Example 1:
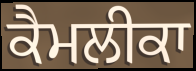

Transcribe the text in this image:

ਕੈਮਲੀਕਾ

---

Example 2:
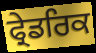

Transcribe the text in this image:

ਫ੍ਰੇਡਰਿਕ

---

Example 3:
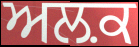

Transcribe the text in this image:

ਅਲ਼ਕ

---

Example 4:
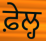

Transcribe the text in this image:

ਫ਼ੇਲ੍ਹ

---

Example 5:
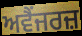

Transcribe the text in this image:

ਅਵੈਂਜਰਜ਼